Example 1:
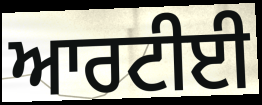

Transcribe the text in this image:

ਆਰਟੀਈ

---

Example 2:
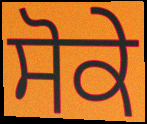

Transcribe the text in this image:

ਸੋਕੇ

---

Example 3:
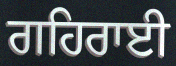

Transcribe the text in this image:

ਗਹਿਰਾਈ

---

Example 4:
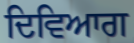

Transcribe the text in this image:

ਦਿਵਿਆਗ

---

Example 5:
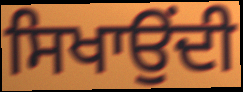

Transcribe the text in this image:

ਸਿਖਾਉਂਦੀ